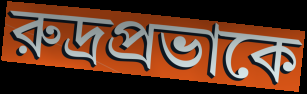
রুদ্রপ্রভাকে